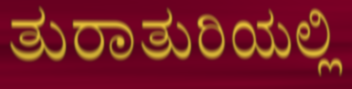
ತುರಾತುರಿಯಲ್ಲಿ